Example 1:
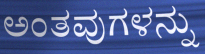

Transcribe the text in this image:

ಅಂತವುಗಳನ್ನು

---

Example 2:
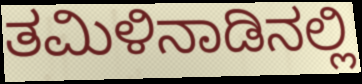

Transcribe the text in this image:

ತಮಿಳಿನಾಡಿನಲ್ಲಿ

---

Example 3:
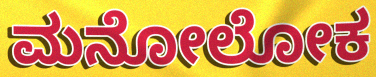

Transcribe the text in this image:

ಮನೋಲೋಕ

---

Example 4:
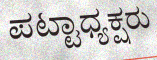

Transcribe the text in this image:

ಪಟ್ಟಾಧ್ಯಕ್ಷರು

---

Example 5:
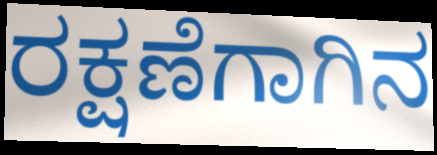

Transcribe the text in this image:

ರಕ್ಷಣೆಗಾಗಿನ